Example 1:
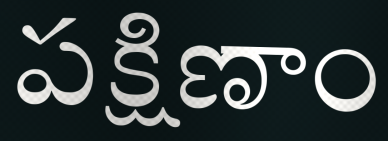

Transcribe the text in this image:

పక్షిణాం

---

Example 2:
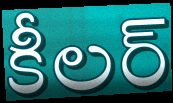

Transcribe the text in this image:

కీలర్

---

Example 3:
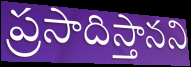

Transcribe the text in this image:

ప్రసాదిస్తానని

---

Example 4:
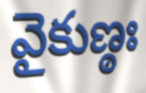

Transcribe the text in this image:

వైకుణ్ఠః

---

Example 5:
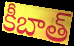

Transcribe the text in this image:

కీబాత్